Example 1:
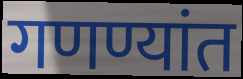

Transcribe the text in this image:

गणण्यांत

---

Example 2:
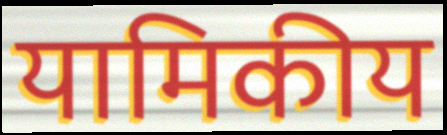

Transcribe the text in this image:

यामिकीय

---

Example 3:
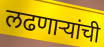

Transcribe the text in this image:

लढणाऱ्यांची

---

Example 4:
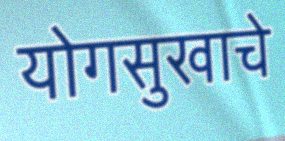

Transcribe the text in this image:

योगसुखाचे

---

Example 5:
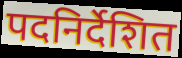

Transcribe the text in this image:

पदनिर्देशित